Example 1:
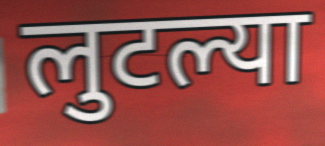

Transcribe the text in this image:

लुटल्या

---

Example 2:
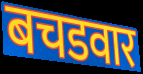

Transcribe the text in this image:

बचडवार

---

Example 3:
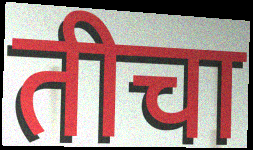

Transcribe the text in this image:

तीचा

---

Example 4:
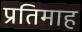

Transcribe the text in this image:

प्रतिमाह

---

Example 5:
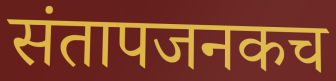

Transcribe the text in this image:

संतापजनकच